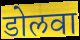
डोलवा